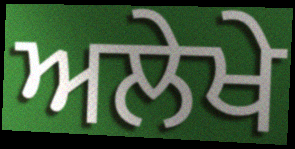
ਅਲੇਖੇ